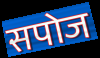
सपोज